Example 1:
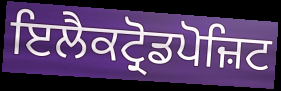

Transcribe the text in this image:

ਇਲੈਕਟ੍ਰੋਡਪੋਜ਼ਿਟ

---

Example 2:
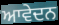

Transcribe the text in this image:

ਆਵੇਦਨ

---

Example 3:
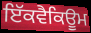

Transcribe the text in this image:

ਇੱਕਵੈਕਿਊਮ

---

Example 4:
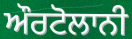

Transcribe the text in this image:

ਔਰਟੋਲਾਨੀ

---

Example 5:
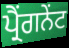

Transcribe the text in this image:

ਪ੍ਰੈਂਗਨੇਂਟ